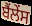
ਬੈਂਲੇਂਸ